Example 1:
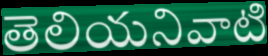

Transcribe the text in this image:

తెలియనివాటి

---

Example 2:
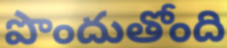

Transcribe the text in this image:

పొందుతోంది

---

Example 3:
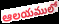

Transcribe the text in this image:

ఆలయములో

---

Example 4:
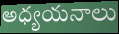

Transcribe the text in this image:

అధ్యయనాలు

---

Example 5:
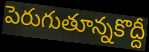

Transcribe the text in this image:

పెరుగుతూన్నకొద్దీ